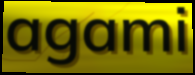
agami